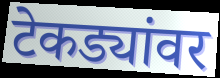
टेकड्यांवर